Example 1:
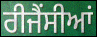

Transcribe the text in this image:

ਰੀਜੈਂਸੀਆਂ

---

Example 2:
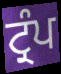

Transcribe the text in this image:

ਟ੍ਰੰਪ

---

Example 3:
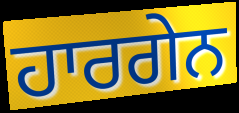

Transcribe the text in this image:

ਹਾਰਗੇਨ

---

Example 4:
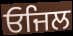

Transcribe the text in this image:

ਓਜਿਲ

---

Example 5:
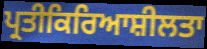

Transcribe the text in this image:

ਪ੍ਰਤੀਕਿਰਿਆਸ਼ੀਲਤਾ